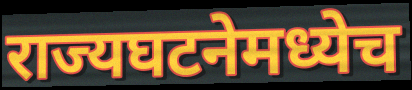
राज्यघटनेमध्येच